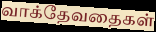
வாக்தேவதைகள்